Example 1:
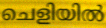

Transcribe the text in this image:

ചെളിയിൽ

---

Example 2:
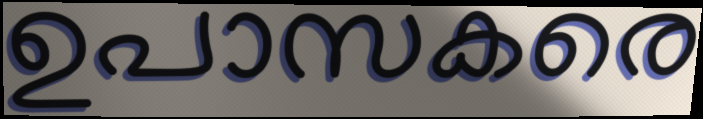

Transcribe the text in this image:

ഉപാസകരെ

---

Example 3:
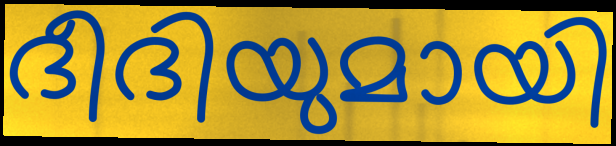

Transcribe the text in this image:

ദീദിയുമായി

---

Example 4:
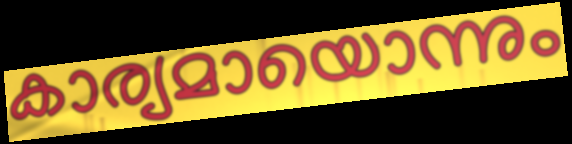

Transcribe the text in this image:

കാര്യമായൊന്നും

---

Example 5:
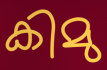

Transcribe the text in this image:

കിമു